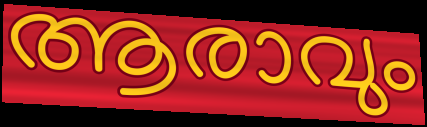
ആരാവും